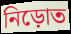
নিড়োত